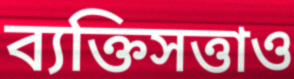
ব্যক্তিসত্তাও